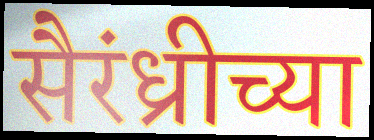
सैरंध्रीच्या